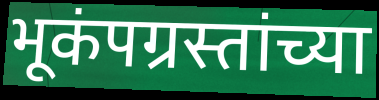
भूकंपग्रस्तांच्या